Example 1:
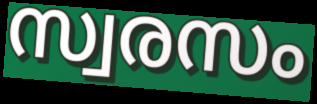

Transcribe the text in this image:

സ്വരസം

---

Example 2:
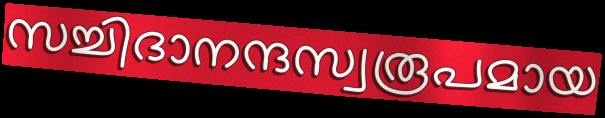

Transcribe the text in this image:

സച്ചിദാനന്ദസ്വരൂപമായ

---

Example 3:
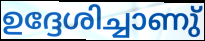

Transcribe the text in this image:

ഉദ്ദേശിച്ചാണു്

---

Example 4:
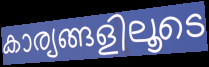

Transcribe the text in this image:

കാര്യങ്ങളിലൂടെ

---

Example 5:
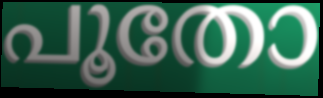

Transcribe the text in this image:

പൂതോ